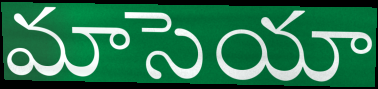
మాసెయా